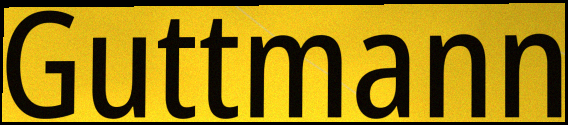
Guttmann